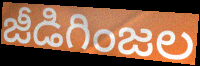
జీడిగింజల